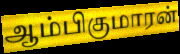
ஆம்பிகுமாரன்